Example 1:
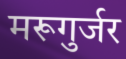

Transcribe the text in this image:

मरूगुर्जर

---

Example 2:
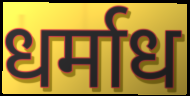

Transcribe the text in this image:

धर्माध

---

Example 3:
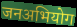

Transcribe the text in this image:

जनअभियोग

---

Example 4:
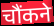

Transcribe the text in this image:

चौंकने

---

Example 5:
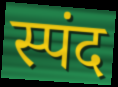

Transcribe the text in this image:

स्पंद